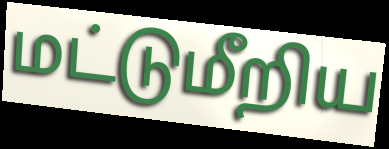
மட்டுமீறிய